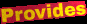
Provides